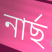
নাৰ্ছ